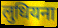
लुधियना